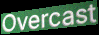
Overcast